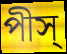
পীস্